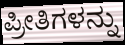
ಪ್ರೀತಿಗಳನ್ನು